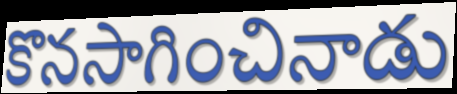
కొనసాగించినాడు